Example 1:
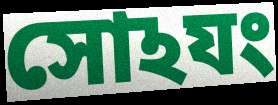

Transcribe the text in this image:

সোঽযং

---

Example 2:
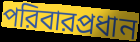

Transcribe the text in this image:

পরিবারপ্রধান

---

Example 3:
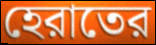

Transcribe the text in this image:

হেরাতের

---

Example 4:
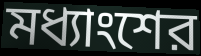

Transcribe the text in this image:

মধ্যাংশের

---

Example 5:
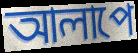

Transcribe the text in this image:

আলাপে